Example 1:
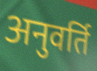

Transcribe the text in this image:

अनुवर्ति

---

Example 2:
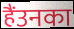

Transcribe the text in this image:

हैंउनका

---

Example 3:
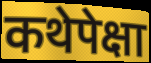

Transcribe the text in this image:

कथेपेक्षा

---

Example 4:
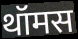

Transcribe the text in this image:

थॉमस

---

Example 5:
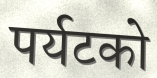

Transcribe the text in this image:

पर्यटको